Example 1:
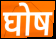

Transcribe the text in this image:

घोष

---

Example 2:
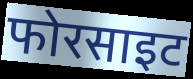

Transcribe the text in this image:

फोरसाइट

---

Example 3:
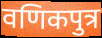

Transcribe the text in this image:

वणिकपुत्र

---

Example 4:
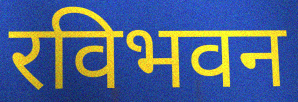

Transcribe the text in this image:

रविभवन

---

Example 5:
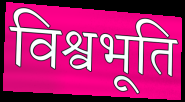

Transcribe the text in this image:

विश्वभूति